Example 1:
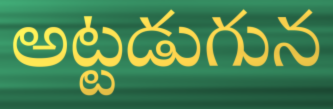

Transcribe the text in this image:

అట్టడుగున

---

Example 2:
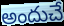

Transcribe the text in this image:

అందుచే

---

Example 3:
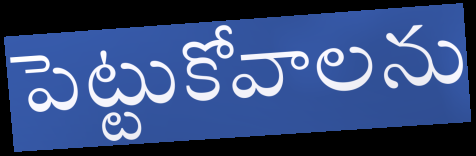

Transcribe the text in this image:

పెట్టుకోవాలను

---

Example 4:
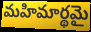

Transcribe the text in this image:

మహిమార్థమై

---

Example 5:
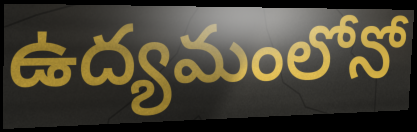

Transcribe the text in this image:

ఉద్యమంలోనో